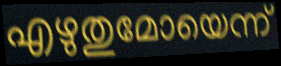
എഴുതുമോയെന്ന്